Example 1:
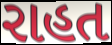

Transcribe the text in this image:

રાહત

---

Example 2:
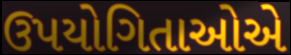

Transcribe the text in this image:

ઉપયોગિતાઓએ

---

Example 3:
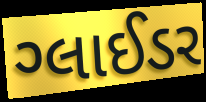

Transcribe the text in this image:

ગ્લાઈડર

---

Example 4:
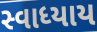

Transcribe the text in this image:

સ્વાધ્યાય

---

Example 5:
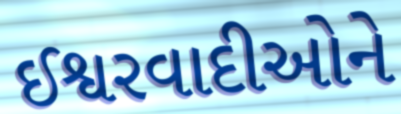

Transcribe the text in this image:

ઈશ્વરવાદીઓને